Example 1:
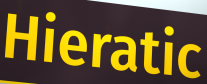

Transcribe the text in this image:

Hieratic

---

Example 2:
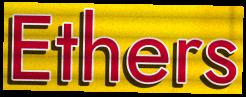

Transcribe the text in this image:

Ethers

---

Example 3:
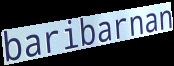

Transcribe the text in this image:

baribarnan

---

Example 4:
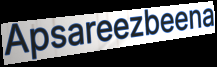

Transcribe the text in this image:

Apsareezbeena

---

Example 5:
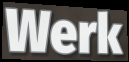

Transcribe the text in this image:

Werk